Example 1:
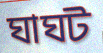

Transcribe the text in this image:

ঘাঘট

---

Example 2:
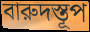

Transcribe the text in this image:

বারুদস্তূপ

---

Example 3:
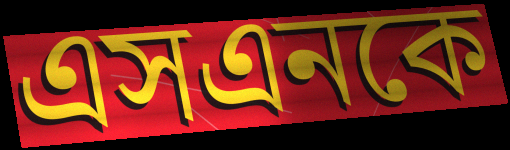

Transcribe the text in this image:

এসএনকে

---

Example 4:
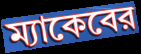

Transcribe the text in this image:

ম্যাকেবের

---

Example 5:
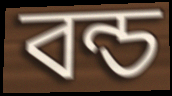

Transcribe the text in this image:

বন্ড